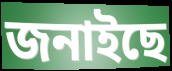
জনাইছে